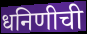
धनिणीची